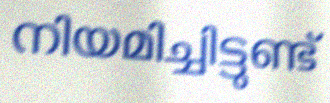
നിയമിച്ചിട്ടുണ്ട്